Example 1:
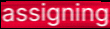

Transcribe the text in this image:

assigning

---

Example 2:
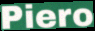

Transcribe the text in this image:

Piero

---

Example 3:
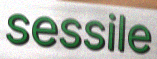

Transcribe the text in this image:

sessile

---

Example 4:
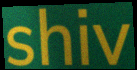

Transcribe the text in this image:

shiv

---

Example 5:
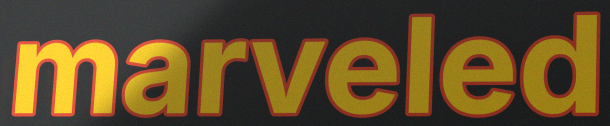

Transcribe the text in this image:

marveled